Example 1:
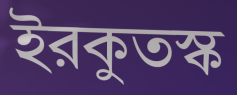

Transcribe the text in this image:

ইরকুতস্ক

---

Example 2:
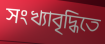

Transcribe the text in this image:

সংখ্যাবৃদ্ধিতে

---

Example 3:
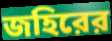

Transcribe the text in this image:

জহিরের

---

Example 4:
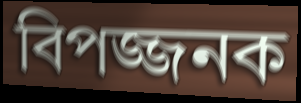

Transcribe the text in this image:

বিপজ্জনক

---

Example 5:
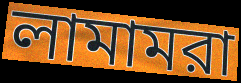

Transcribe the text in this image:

লামামরা